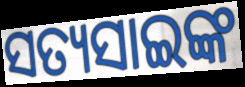
ସତ୍ୟସାଇଙ୍କ